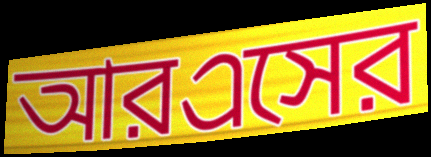
আরএসের